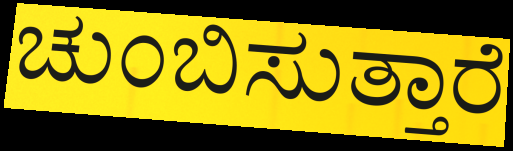
ಚುಂಬಿಸುತ್ತಾರೆ